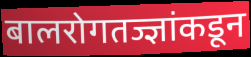
बालरोगतज्ज्ञांकडून